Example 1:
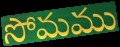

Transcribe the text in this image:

సోమము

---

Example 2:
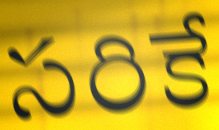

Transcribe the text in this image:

సరికే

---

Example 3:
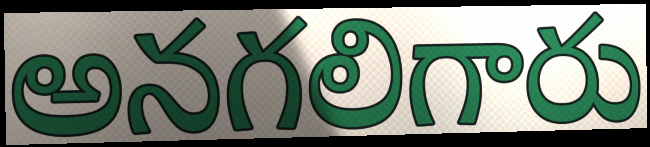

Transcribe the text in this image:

అనగలిగారు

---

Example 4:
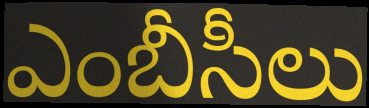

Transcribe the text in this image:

ఎంబీసీలు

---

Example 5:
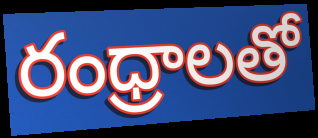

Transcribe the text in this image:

రంధ్రాలతో